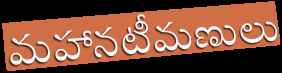
మహానటీమణులు